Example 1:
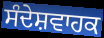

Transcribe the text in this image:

ਸੰਦੇਸ਼ਵਾਹਕ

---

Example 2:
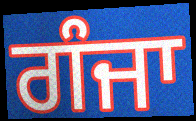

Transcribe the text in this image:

ਗੰਜਾ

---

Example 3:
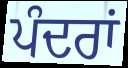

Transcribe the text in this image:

ਪੰਦਰਾਂ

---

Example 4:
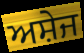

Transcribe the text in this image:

ਅਸ਼ੇਜ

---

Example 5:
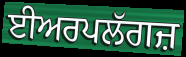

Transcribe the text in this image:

ਈਅਰਪਲੱਗਜ਼